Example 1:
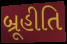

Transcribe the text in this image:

બ્રૂહીતિ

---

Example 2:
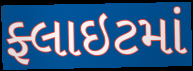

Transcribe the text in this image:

ફ્લાઇટમાં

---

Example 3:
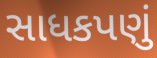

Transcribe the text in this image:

સાધકપણું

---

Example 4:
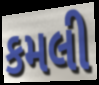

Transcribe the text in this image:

કમલી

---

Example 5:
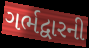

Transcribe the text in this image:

ગર્ભદ્વારની